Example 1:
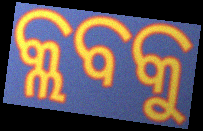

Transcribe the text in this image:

କ୍ଲବକୁ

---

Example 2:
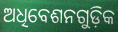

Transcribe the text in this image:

ଅଧିବେଶନଗୁଡ଼ିକ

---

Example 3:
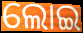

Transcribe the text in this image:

ଲୋଇ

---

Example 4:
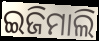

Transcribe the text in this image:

ଇଜିମାଲି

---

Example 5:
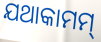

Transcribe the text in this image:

ଯଥାକାମମ୍